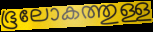
ഭൂലോകത്തുള്ള